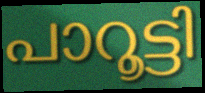
പാറൂട്ടി